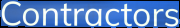
Contractors